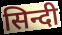
सिन्दी